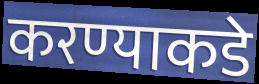
करण्याकडे